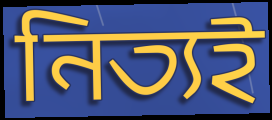
নিত্যই